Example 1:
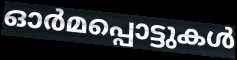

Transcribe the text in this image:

ഓർമപ്പൊട്ടുകൾ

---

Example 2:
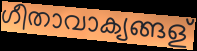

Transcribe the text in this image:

ഗീതാവാക്യങ്ങള്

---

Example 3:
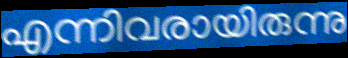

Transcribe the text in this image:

എന്നിവരായിരുന്നു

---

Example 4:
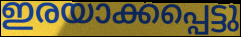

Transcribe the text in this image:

ഇരയാക്കപ്പെട്ടു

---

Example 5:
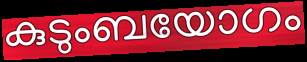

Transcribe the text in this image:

കുടുംബയോഗം